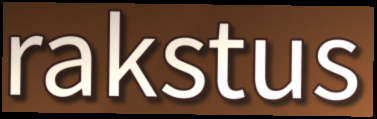
rakstus